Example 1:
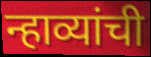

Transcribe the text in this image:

न्हाव्यांची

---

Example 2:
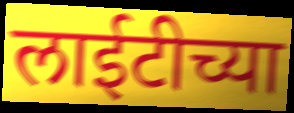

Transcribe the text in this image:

लाईटीच्या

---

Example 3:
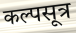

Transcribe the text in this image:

कल्पसूत्र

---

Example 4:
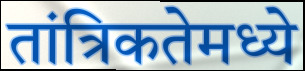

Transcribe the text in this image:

तांत्रिकतेमध्ये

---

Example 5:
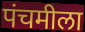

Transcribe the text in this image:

पंचमीला